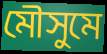
মৌসুমে